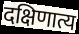
दक्षिणात्य